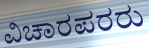
ವಿಚಾರಪರರು